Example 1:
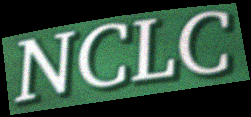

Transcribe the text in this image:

NCLC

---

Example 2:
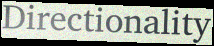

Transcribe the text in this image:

Directionality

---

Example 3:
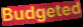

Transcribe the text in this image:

Budgeted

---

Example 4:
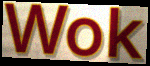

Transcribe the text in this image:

Wok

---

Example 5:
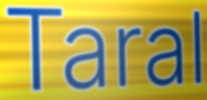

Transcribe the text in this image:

Taral